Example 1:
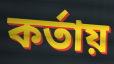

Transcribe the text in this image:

কর্তায়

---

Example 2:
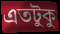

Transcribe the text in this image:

এতটুকু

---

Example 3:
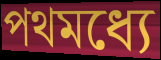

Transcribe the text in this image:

পথমধ্যে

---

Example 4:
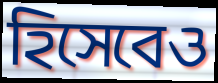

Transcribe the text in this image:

হিসেবেও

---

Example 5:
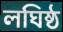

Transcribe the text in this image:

লঘিষ্ঠ